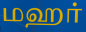
மஹர்